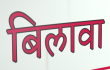
बिलावा